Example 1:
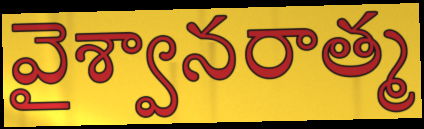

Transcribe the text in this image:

వైశ్వానరాత్మ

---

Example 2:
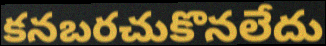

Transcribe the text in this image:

కనబరచుకొనలేదు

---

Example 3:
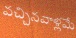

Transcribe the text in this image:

వచ్చినవాళ్లమే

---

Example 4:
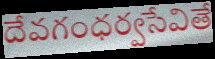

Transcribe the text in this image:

దేవగంధర్వసేవితే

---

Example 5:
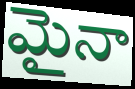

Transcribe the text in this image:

మైనా